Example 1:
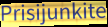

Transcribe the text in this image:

Prisijunkite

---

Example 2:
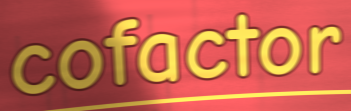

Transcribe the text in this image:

cofactor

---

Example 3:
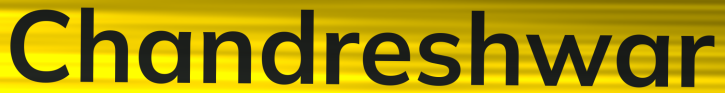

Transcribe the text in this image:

Chandreshwar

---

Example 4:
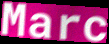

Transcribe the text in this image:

Marc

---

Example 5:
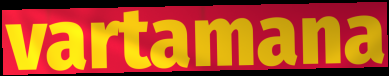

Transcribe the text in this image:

vartamana